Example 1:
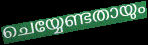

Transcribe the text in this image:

ചെയ്യേണ്ടതായും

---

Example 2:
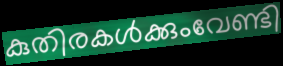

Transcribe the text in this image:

കുതിരകൾക്കുംവേണ്ടി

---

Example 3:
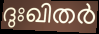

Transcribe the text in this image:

ദുഃഖിതർ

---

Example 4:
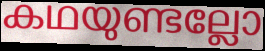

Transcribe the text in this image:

കഥയുണ്ടല്ലോ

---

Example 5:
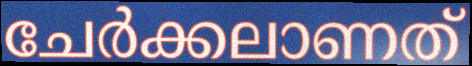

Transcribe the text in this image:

ചേർക്കലാണത്